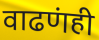
वाढणंही